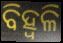
ବିହ୍ୱଳି